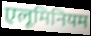
एलूमिनियम